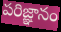
పరిజ్ఞానం